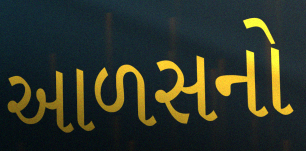
આળસનો